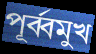
পূর্ব্বমুখ